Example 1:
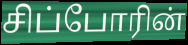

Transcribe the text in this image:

சிப்போரின்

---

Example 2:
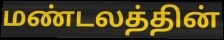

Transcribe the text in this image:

மண்டலத்தின்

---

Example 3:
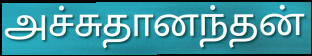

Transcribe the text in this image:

அச்சுதானந்தன்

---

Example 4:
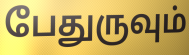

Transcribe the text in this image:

பேதுருவும்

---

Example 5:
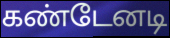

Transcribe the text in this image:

கண்டேனடி